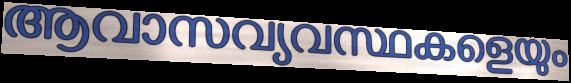
ആവാസവ്യവസ്ഥകളെയും